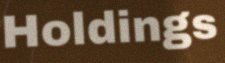
Holdings